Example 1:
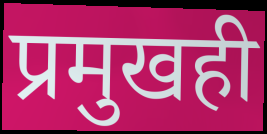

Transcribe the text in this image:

प्रमुखही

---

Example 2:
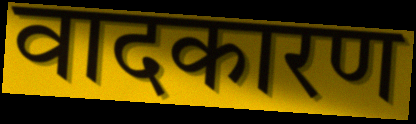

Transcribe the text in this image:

वादकारण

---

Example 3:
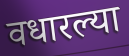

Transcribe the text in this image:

वधारल्या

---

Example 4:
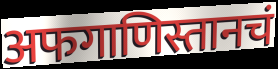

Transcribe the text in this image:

अफगाणिस्तानचं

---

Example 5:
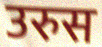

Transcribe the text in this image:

उरुस